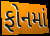
ફોનમાં